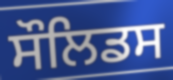
ਸੌਲਿਡਸ